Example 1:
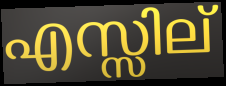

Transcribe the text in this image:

എസ്സില്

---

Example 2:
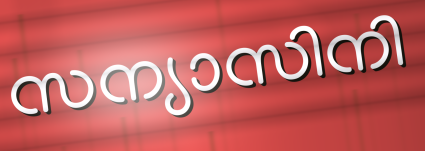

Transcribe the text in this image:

സന്യാസിനി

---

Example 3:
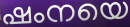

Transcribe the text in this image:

ഷംനയെ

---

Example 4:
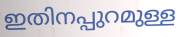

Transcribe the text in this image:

ഇതിനപ്പുറമുള്ള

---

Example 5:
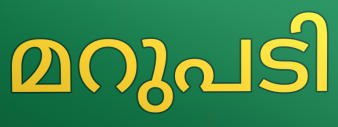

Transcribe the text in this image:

മറുപടി